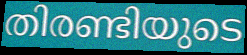
തിരണ്ടിയുടെ